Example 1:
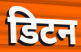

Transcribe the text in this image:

डिटन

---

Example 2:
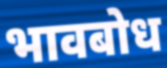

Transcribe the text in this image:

भावबोध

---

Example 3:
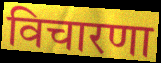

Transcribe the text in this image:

विचारणा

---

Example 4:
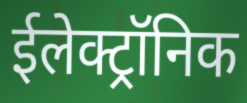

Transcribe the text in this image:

ईलेक्ट्रॉनिक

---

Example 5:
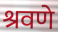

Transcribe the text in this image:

श्रवणे